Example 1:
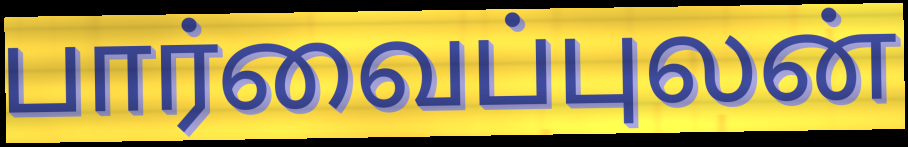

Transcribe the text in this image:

பார்வைப்புலன்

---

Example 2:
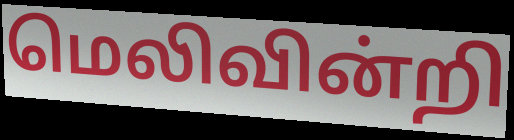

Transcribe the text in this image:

மெலிவின்றி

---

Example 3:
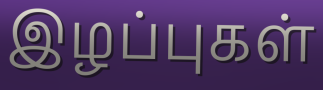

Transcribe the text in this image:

இழப்புகள்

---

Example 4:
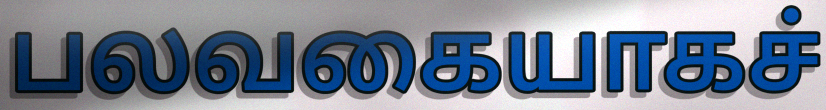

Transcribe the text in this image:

பலவகையாகச்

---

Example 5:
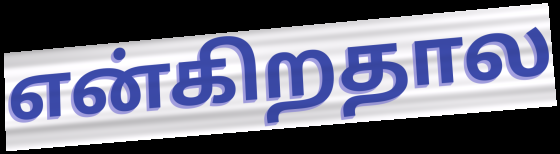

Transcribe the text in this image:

என்கிறதால